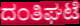
ದಂತಿಘಟೆ